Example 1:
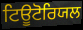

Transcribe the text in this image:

ਟਿਊਟੋਰਿਯਲ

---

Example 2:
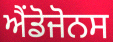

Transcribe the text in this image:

ਐਂਡੋਜੋਨਸ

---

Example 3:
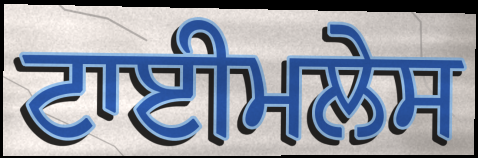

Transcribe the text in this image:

ਟਾਈਮਲੇਸ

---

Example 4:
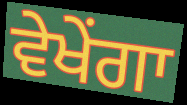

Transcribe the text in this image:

ਵੇਖੇਂਗਾ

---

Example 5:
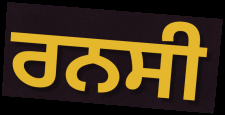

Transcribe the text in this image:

ਰਨਸੀ